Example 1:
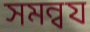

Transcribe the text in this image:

সমন্বয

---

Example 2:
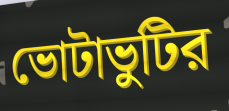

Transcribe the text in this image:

ভোটাভুটির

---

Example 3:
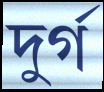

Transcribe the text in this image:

দুর্গ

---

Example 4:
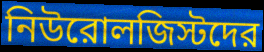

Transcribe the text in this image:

নিউরোলজিস্টদের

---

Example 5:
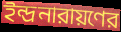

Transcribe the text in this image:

ইন্দ্রনারায়ণের